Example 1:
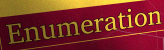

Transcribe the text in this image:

Enumeration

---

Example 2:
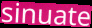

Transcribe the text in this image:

sinuate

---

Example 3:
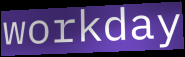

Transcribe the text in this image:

workday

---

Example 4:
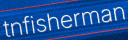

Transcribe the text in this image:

tnfisherman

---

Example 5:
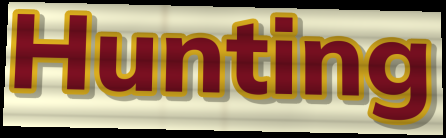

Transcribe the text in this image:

Hunting